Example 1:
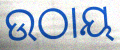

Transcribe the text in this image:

ଉଠାୟ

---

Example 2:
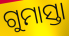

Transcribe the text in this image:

ଗୁମାସ୍ତା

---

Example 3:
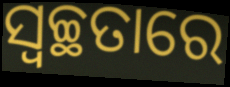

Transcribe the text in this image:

ସ୍ବଚ୍ଛତାରେ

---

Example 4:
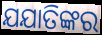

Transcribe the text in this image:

ଯଯାତିଙ୍କର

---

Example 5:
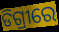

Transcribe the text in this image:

ଡିଗ୍ରୀରେ